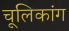
चूलिकांग